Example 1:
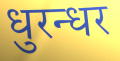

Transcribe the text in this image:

धुरन्धर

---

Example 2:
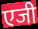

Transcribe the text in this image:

एजी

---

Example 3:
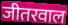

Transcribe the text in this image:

जीतरवाल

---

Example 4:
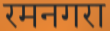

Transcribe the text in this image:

रमनगरा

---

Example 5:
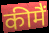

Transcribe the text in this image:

कीमैं